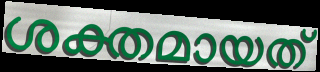
ശക്തമായത്